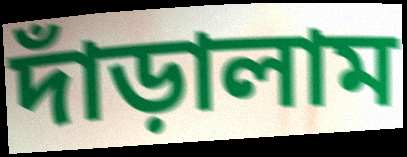
দাঁড়ালাম